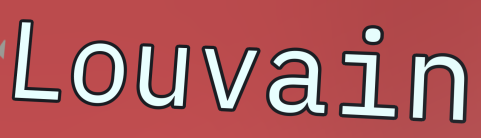
Louvain